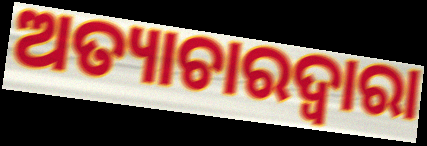
ଅତ୍ୟାଚାରଦ୍ୱାରା